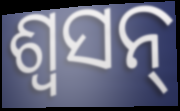
ଶ୍ୱସନ୍